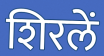
शिरलें